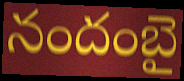
నందంబై